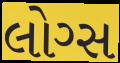
લોગ્સ